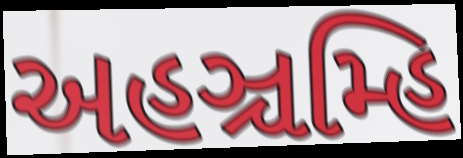
અહઞ્ચમ્હિ